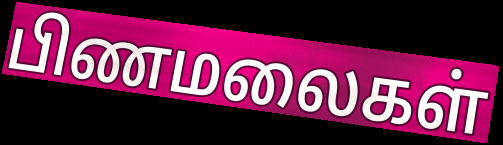
பிணமலைகள்